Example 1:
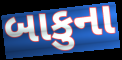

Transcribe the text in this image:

બાકુના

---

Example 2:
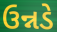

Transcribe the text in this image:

ઉન્નડે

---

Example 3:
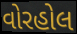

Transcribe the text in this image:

વોરહોલ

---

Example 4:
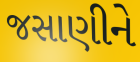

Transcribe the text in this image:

જસાણીને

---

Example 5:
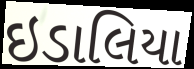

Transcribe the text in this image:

ઇડાલિયા